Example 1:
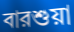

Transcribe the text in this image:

বারশুয়া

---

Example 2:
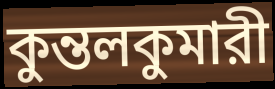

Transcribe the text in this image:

কুন্তলকুমারী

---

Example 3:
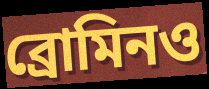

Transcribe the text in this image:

ব্রোমিনও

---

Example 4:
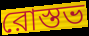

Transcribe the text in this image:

রোস্তভ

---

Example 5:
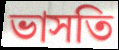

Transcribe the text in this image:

ভাসতি